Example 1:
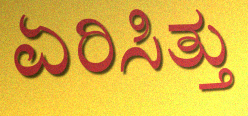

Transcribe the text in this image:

ಏರಿಸಿತ್ತು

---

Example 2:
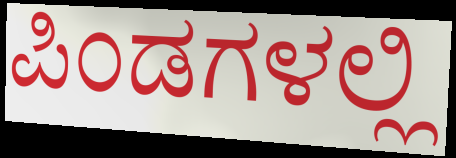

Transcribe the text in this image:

ಪಿಂಡಗಳಲ್ಲಿ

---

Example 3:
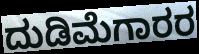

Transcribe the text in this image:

ದುಡಿಮೆಗಾರರ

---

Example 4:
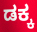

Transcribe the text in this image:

ಡಕ್ಕ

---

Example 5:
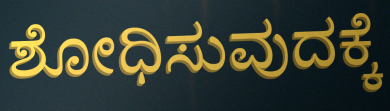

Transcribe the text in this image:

ಶೋಧಿಸುವುದಕ್ಕೆ